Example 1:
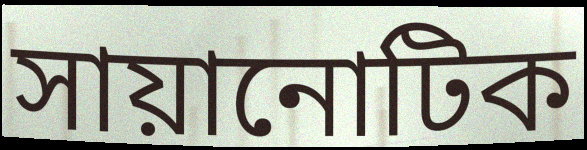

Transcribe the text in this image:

সায়ানোটিক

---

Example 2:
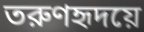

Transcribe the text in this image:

তরুণহৃদয়ে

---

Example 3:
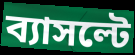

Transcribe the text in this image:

ব্যাসল্টে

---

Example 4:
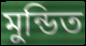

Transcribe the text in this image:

মুন্ডিত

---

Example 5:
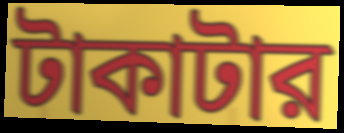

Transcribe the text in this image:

টাকাটার